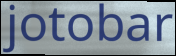
jotobar